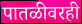
पातळीवरही